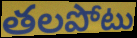
తలపోటు